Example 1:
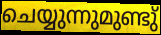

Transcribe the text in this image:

ചെയ്യുന്നുമുണ്ടു്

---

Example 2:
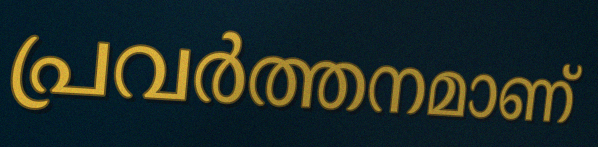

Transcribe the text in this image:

പ്രവർത്തനമാണ്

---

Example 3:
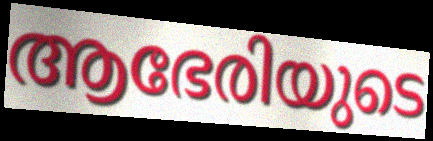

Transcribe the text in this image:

ആഭേരിയുടെ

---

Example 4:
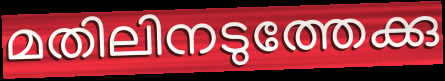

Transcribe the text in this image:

മതിലിനടുത്തേക്കു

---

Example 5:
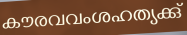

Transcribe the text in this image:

കൗരവവംശഹത്യക്കു്